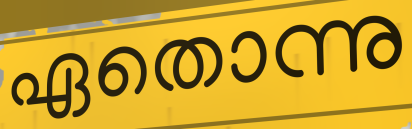
ഏതൊന്നു